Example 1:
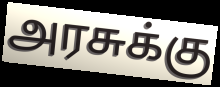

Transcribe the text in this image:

அரசுக்கு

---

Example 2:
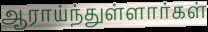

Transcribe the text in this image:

ஆராய்ந்துள்ளார்கள்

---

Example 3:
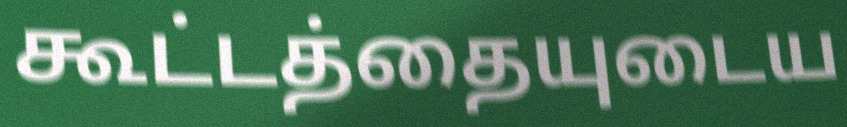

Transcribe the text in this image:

கூட்டத்தையுடைய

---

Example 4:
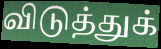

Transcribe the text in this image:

விடுத்துக்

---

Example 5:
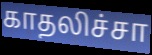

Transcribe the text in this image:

காதலிச்சா